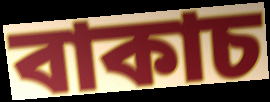
বাকাচ